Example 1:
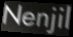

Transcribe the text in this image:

Nenjil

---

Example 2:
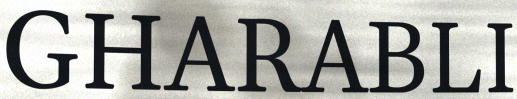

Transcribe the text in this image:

GHARABLI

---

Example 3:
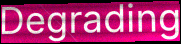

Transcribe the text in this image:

Degrading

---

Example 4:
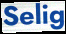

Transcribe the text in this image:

Selig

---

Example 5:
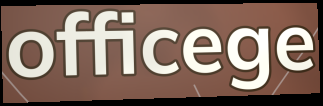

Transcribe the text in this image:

officege